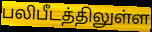
பலிபீடத்திலுள்ள